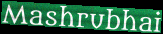
Mashrubhai